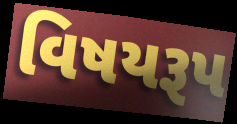
વિષયરૂપ